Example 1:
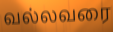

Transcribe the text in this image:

வல்லவரை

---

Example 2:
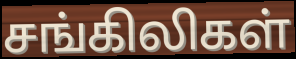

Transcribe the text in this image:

சங்கிலிகள்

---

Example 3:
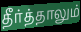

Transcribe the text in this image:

தீர்த்தாலும்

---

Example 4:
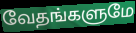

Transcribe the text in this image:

வேதங்களுமே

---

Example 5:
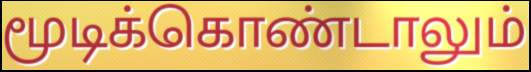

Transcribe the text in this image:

மூடிக்கொண்டாலும்